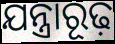
ଯନ୍ତ୍ରାରୂଢ଼